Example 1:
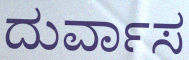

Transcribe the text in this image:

ದುರ್ವಾಸ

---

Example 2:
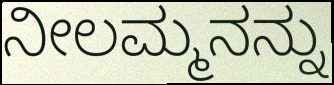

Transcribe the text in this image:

ನೀಲಮ್ಮನನ್ನು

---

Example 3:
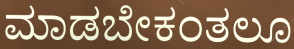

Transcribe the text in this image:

ಮಾಡಬೇಕಂತಲೂ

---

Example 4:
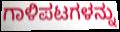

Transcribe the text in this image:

ಗಾಳಿಪಟಗಳನ್ನು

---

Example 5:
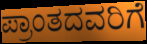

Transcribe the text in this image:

ಪ್ರಾಂತದವರಿಗೆ